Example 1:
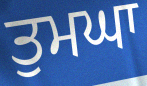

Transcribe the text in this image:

ਤੁਮਘਾ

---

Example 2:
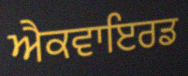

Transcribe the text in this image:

ਐਕਵਾਇਰਡ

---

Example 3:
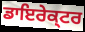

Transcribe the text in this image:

ਡਾਇਰੇਕ੍ਟਰ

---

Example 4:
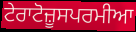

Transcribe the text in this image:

ਟੇਰਾਟੋਜ਼ੂਸਪਰਮੀਆ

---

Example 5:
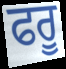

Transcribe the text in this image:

ਫਰੂ